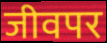
जीवपर